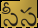
సీస